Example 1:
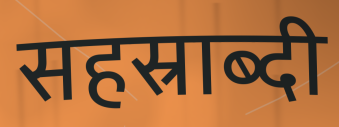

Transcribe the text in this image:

सहस्राब्दी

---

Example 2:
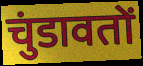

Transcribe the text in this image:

चुंडावतों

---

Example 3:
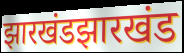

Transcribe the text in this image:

झारखंडझारखंड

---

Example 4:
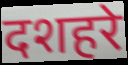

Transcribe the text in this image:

दशहरे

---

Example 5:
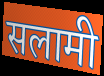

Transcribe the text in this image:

सलामी